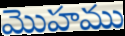
మొహము